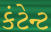
કંટેન્ટ